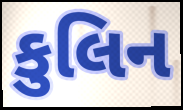
કુલિન